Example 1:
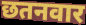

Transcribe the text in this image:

छतनवार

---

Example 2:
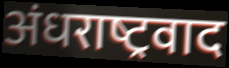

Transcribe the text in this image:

अंधराष्ट्रवाद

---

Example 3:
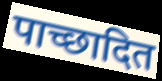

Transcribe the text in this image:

पाच्छादित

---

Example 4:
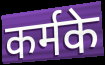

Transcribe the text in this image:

कर्मके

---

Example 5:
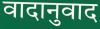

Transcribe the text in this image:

वादानुवाद